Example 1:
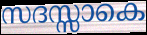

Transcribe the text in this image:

സദസ്സാകെ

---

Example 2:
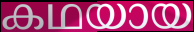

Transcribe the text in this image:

കഥയായ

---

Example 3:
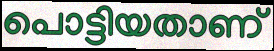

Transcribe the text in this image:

പൊട്ടിയതാണ്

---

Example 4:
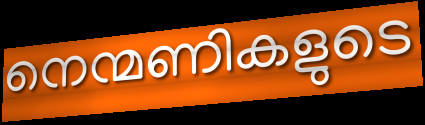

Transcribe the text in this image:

നെന്മണികളുടെ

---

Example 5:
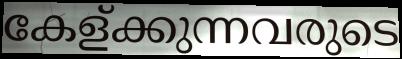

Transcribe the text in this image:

കേള്ക്കുന്നവരുടെ